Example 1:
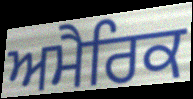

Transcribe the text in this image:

ਅਮੈਰਿਕ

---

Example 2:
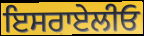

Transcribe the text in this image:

ਇਸਰਾਏਲੀਓ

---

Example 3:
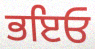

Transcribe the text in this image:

ਭਇਓ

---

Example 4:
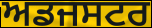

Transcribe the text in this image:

ਅਡਜਸਟਰ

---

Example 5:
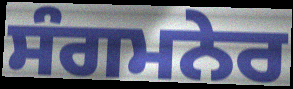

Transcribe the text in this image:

ਸੰਗਮਨੇਰ